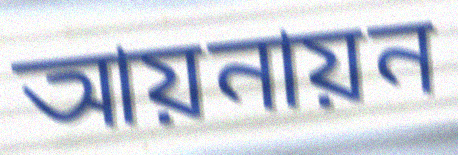
আয়নায়ন